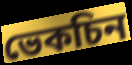
ভেকচিন